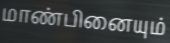
மாண்பினையும்